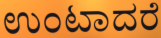
ಉಂಟಾದರೆ